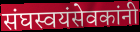
संघस्वयंसेवकांनी